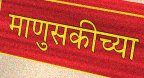
माणुसकीच्या